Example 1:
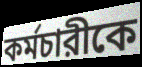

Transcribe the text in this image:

কর্মচারীকে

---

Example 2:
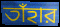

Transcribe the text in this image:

তাঁহার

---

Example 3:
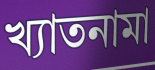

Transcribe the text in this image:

খ্যাতনামা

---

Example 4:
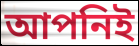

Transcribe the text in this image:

আপনিই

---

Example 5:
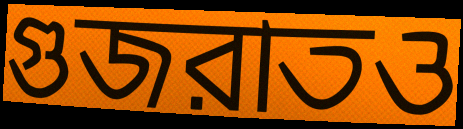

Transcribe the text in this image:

গুজরাতও